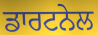
ਡਾਰਟਨੇਲ